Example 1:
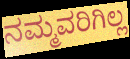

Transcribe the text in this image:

ನಮ್ಮವರಿಗಿಲ್ಲ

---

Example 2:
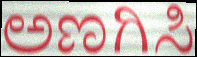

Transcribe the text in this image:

ಅಣಗಿಸಿ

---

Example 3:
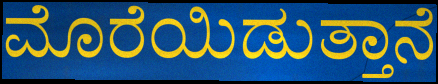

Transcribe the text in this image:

ಮೊರೆಯಿಡುತ್ತಾನೆ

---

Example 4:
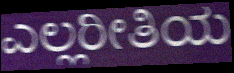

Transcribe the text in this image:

ಎಲ್ಲರೀತಿಯ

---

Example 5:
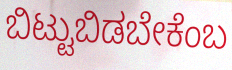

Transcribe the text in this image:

ಬಿಟ್ಟುಬಿಡಬೇಕೆಂಬ